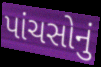
પાંચસોનું